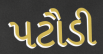
પટૌડી